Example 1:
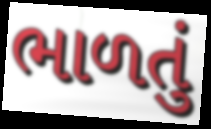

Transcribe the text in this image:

ભાળતું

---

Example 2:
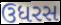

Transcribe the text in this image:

ઉધરસ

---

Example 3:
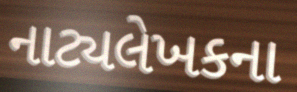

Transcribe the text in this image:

નાટ્યલેખકના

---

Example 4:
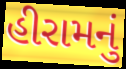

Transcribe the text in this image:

હીરામનું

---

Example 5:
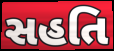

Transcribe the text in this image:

સહતિ